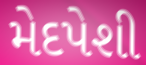
મેદપેશી